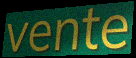
vente